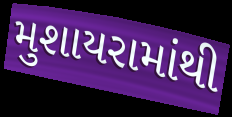
મુશાયરામાંથી